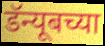
डॅन्यूबच्या